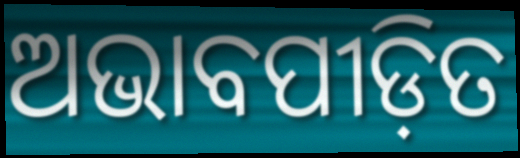
ଅଭାବପୀଡ଼ିତ